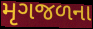
મૃગજળના